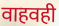
वाहवही